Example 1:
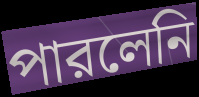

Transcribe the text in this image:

পারলেনি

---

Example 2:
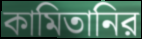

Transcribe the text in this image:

কামিতানির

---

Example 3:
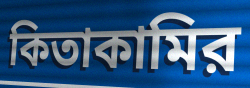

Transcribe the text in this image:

কিতাকামির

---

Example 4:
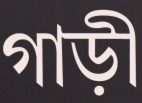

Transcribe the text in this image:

গাড়ী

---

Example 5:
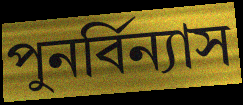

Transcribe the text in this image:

পুনর্বিন্যাস